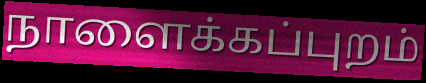
நாளைக்கப்புறம்